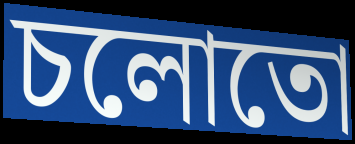
চলোতো